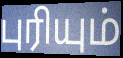
புரியும்